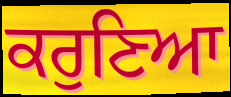
ਕਰੁਣਿਆ